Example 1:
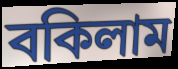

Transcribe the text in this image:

বকিলাম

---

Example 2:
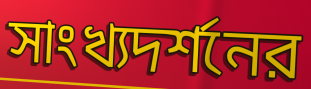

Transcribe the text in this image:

সাংখ্যদর্শনের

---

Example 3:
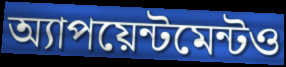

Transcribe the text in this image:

অ্যাপয়েন্টমেন্টও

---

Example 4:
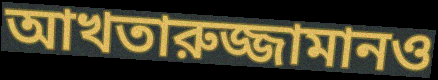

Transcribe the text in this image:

আখতারুজ্জামানও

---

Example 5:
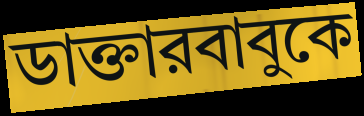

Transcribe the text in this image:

ডাক্তারবাবুকে